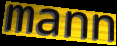
mann